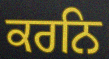
ਕਰਨਿ